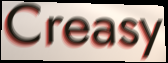
Creasy